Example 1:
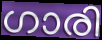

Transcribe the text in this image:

ഗാരി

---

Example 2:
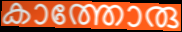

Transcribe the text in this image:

കാത്തോരു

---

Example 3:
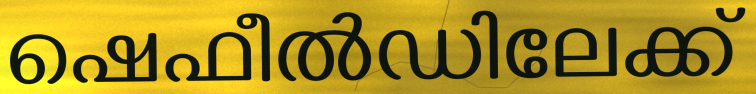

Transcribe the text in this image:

ഷെഫീൽഡിലേക്ക്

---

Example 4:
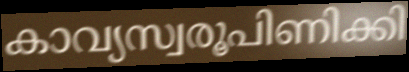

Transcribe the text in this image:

കാവ്യസ്വരൂപിണിക്കി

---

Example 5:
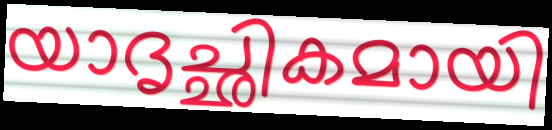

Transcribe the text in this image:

യാദൃച്ഛികമായി